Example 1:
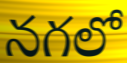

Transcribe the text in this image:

నగలో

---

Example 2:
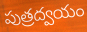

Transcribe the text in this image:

పుత్రద్వయం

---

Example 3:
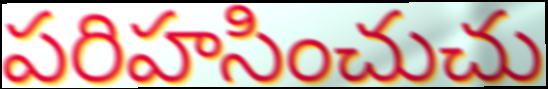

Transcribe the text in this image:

పరిహసించుచు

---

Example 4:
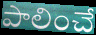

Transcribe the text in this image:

పాలించే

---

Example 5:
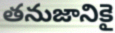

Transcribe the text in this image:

తనుజానికై